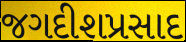
જગદીશપ્રસાદ